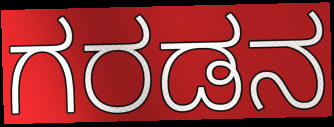
ಗರಡನ